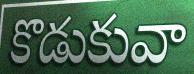
కొడుకువా